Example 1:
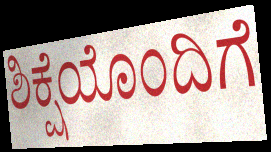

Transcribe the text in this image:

ಶಿಕ್ಷೆಯೊಂದಿಗೆ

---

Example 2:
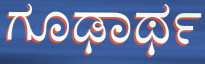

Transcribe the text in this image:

ಗೂಢಾರ್ಥ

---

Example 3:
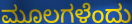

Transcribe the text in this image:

ಮೂಲಗಳೆಂದು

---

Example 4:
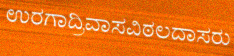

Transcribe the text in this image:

ಉರಗಾದ್ರಿವಾಸವಿಠಲದಾಸರು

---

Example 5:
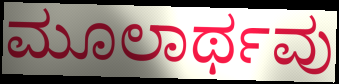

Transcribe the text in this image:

ಮೂಲಾರ್ಥವು